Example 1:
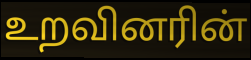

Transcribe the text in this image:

உறவினரின்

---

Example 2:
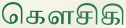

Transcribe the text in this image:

கௌசிகி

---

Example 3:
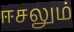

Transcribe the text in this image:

ஈசலும்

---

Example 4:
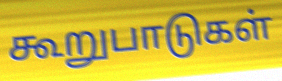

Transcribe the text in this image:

கூறுபாடுகள்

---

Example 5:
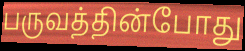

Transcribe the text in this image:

பருவத்தின்போது